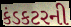
કંડકટરની